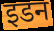
इडन